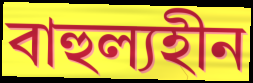
বাহুল্যহীন